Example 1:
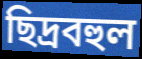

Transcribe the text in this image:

ছিদ্রবহুল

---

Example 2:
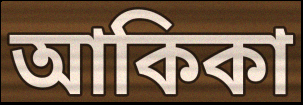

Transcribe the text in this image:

আকিকা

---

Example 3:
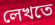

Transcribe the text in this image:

লেখতে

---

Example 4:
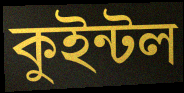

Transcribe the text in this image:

কুইন্টল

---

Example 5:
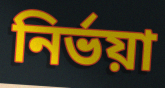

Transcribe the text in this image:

নির্ভয়া